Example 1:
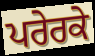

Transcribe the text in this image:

ਪਰੇਰਕੇ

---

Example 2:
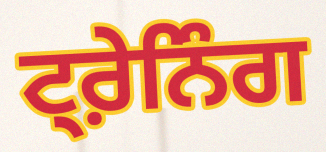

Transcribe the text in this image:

ਟ੍ਰ਼ੇਨਿੰਗ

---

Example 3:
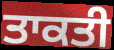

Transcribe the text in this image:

ਤਾਕਤੀ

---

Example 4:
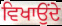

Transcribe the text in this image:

ਵਿਖਾਉੁਂਦੇ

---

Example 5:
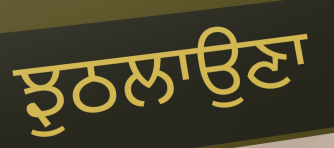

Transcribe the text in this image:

ਝੁਠਲਾਉਣਾ